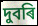
দুবৰি